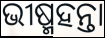
ଭୀଷ୍ମହନ୍ତା